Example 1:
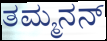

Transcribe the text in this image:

ತಮ್ಮನನ್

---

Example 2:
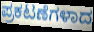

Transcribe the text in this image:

ಪ್ರಕಟಣೆಗಳಾದ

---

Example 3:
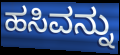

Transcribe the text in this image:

ಹಸಿವನ್ನು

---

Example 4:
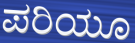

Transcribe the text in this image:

ಪರಿಯೂ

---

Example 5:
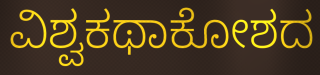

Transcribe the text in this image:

ವಿಶ್ವಕಥಾಕೋಶದ